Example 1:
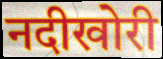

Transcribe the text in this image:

नदीखोरी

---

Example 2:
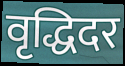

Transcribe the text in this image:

वृद्धिदर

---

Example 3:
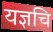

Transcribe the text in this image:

यज्ञचि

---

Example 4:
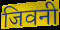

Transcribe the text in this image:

जिवनी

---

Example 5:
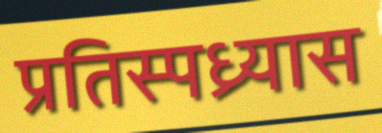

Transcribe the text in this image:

प्रतिस्पध्र्यास